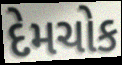
દેમચોક